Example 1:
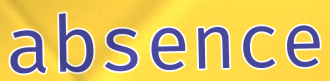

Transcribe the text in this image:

absence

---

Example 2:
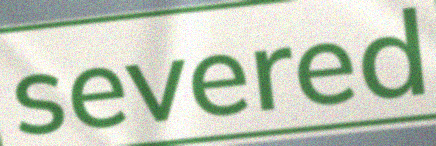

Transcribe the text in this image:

severed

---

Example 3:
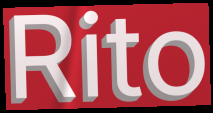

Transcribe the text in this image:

Rito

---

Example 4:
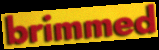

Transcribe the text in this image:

brimmed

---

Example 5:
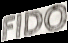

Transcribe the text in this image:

FIDO